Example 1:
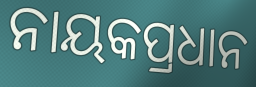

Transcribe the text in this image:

ନାୟକପ୍ରଧାନ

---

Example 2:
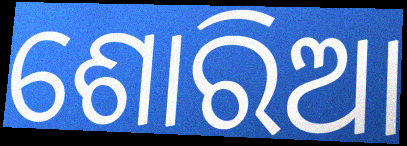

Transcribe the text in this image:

ଶୋରିଆ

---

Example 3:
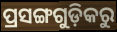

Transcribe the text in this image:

ପ୍ରସଙ୍ଗଗୁଡ଼ିକରୁ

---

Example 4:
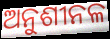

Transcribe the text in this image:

ଅନୁଶୀନଳ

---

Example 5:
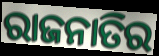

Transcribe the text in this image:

ରାଜନାତିର